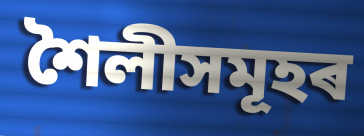
শৈলীসমূহৰ